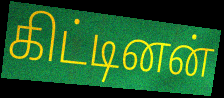
கிட்டினன்